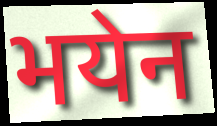
भयेन